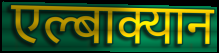
एल्बाक्यान